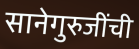
सानेगुरुजींची